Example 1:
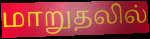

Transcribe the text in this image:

மாறுதலில்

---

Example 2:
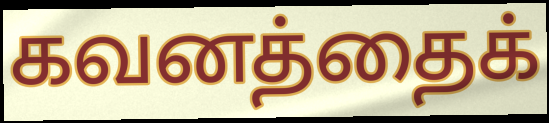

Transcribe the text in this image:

கவனத்தைக்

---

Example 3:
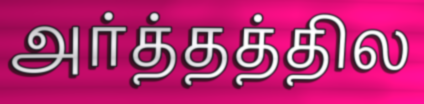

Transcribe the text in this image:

அர்த்தத்தில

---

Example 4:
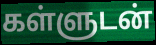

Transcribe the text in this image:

கள்ளுடன்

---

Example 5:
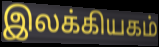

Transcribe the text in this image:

இலக்கியகம்